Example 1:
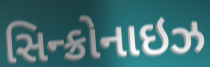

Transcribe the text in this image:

સિન્ક્રોનાઇઝ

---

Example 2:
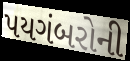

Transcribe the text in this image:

પયગંબરોની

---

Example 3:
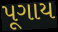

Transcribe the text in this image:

પૂગાય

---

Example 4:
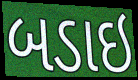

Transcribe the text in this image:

બડાઇ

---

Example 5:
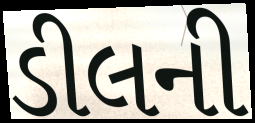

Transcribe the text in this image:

ડીલની